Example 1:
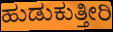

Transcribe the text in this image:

ಹುಡುಕುತ್ತೀರಿ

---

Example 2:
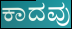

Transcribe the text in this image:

ಕಾದವು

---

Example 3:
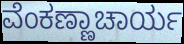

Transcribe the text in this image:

ವೆಂಕಣ್ಣಾಚಾರ್ಯ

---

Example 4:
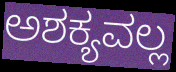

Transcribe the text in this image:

ಅಶಕ್ಯವಲ್ಲ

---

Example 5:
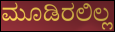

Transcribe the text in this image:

ಮೂಡಿರಲಿಲ್ಲ